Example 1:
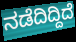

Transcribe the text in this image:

ನಡೆದಿದ್ದಿದೆ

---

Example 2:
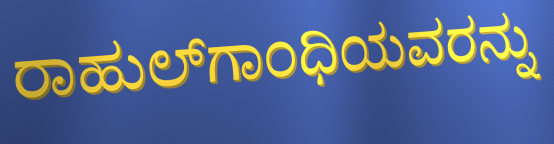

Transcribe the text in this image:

ರಾಹುಲ್‌ಗಾಂಧಿಯವರನ್ನು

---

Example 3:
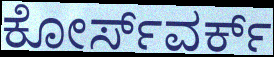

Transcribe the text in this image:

ಕೋರ್ಸ್‌ವರ್ಕ್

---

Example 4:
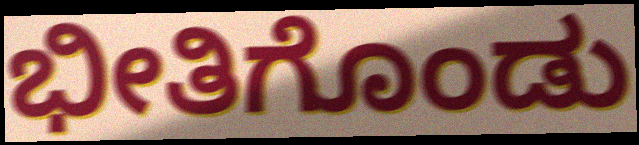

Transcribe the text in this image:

ಭೀತಿಗೊಂಡು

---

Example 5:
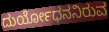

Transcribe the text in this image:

ದುರ್ಯೋಧನನಿರುವ